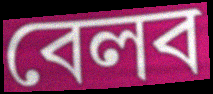
বেলব